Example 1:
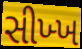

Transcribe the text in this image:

સીખ્ખ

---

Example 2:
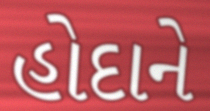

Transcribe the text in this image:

હોદાને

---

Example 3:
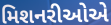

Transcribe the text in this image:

મિશનરીઓએ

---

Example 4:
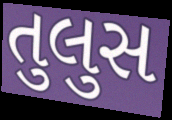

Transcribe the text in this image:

તુલુસ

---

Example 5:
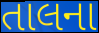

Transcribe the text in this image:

તાલના